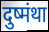
दुष्मंथा